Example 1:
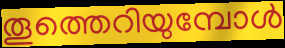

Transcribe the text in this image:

തൂത്തെറിയുമ്പോൾ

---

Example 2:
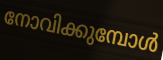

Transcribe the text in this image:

നോവിക്കുമ്പോൾ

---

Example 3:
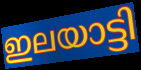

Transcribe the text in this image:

ഇലയാട്ടി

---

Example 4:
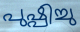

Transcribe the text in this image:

പുഷ്പിച്ചു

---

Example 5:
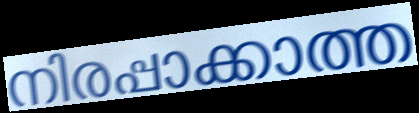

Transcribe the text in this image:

നിരപ്പാക്കാത്ത